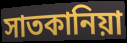
সাতকানিয়া